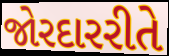
જોરદારરીતે